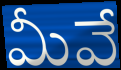
మీవే